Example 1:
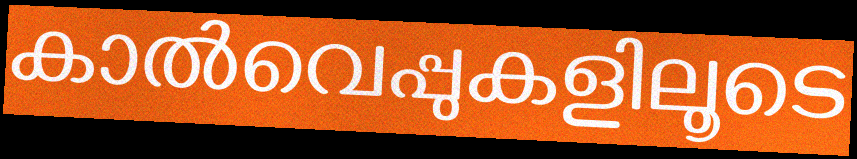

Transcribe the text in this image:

കാൽവെപ്പുകളിലൂടെ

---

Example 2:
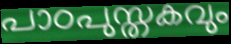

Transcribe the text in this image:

പാഠപുസ്തകവും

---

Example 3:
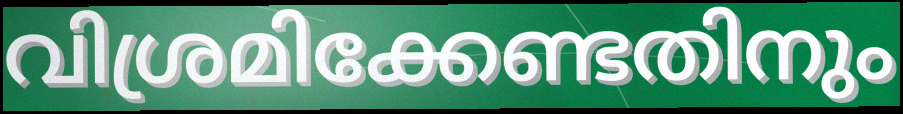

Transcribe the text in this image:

വിശ്രമിക്കേണ്ടതിനും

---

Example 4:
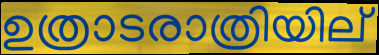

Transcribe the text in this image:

ഉത്രാടരാത്രിയില്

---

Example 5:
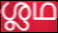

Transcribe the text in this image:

ശ്ലഥ